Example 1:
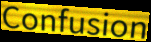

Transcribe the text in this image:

Confusion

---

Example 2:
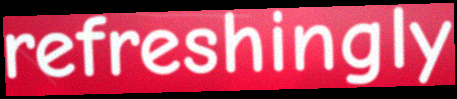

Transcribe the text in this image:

refreshingly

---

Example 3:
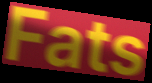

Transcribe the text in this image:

Fats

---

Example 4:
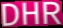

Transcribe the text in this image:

DHR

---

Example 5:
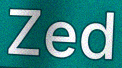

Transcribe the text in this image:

Zed